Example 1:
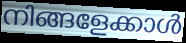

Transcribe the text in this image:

നിങ്ങളേക്കാൾ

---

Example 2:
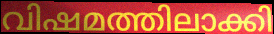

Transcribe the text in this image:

വിഷമത്തിലാക്കി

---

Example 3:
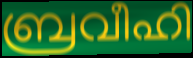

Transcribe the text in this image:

ബ്രവീഹി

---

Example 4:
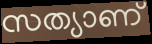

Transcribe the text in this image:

സത്യാണ്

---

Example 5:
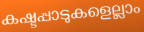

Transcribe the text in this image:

കഷ്ടപ്പാടുകളെല്ലാം